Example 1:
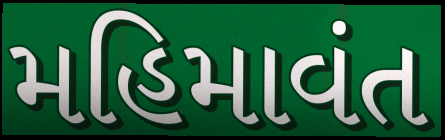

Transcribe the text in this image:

મહિમાવંત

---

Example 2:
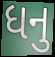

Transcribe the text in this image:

ધનુ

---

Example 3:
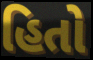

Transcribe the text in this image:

હિતો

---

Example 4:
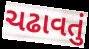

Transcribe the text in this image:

ચઢાવતું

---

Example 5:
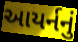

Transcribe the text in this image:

આયર્નનું